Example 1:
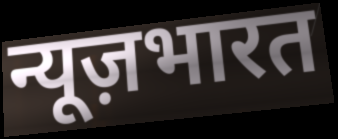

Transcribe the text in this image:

न्यूज़भारत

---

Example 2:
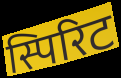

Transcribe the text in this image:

स्पिरिट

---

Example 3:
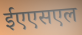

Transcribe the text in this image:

ईएएसएल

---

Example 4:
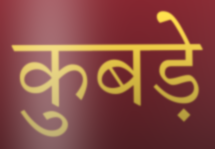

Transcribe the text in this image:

कुबड़े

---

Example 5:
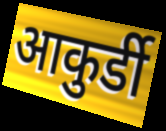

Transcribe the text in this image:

आकुर्डी